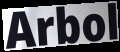
Arbol